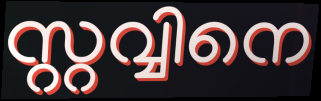
സ്റ്റവ്വിനെ